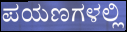
ಪಯಣಗಳಲ್ಲಿ